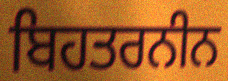
ਬਿਹਤਰਨੀਨ